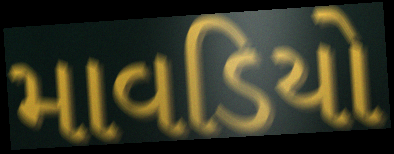
માવડિયો